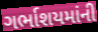
ગર્ભાશયમાંની